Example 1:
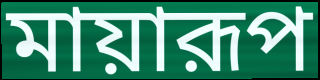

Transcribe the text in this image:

মায়ারূপ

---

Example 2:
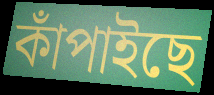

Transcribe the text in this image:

কাঁপাইছে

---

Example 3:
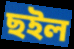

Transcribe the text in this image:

ছইল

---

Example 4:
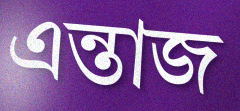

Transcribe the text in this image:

এন্তাজ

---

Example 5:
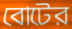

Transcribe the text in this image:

বোটের